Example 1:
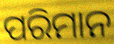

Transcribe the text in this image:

ପରିମାନ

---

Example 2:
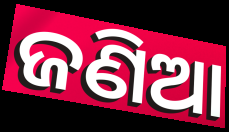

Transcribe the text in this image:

ଜଣିଆ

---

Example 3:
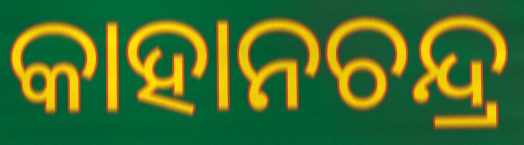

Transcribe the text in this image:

କାହାନଚନ୍ଦ୍ର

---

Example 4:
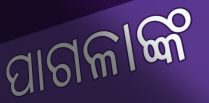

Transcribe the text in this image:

ପାଗଳାଙ୍କ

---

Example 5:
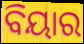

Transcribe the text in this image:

ବିୟାର